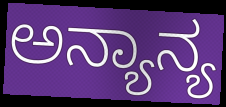
ಅನ್ಯಾನ್ಯ